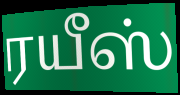
ரயீஸ்